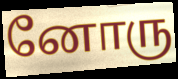
னோரு